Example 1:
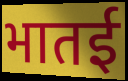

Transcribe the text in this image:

भातई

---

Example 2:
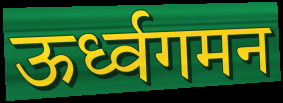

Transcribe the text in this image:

ऊर्ध्वगमन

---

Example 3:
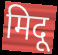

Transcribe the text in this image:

मिदू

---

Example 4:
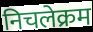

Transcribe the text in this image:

निचलेक्रम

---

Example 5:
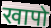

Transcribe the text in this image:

खापो